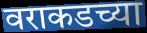
वराकडच्या